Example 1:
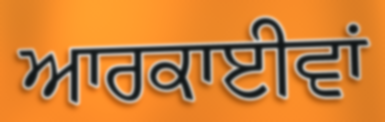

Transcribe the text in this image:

ਆਰਕਾਈਵਾਂ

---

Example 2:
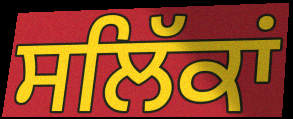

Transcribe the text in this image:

ਸਲਿੱਕਾਂ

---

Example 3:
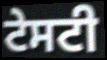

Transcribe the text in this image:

ਟੇਸਟੀ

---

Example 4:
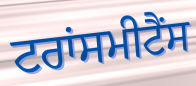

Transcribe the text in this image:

ਟਰਾਂਸਮੀਟੈਂਸ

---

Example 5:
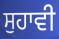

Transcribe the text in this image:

ਸੁਹਾਵੀ